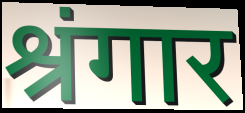
श्रंगार